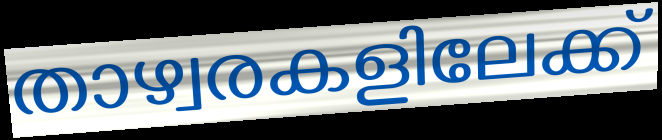
താഴ്വരകളിലേക്ക്